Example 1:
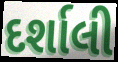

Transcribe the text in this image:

દર્શાલી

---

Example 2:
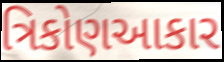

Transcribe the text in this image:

ત્રિકોણઆકાર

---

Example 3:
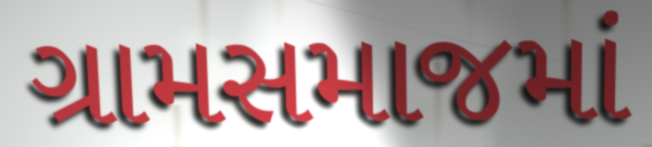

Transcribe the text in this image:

ગ્રામસમાજમાં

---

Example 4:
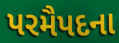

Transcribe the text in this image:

પરમૈપદના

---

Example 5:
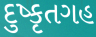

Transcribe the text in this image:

દુષ્કૃતગહ